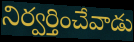
నిర్వర్తించేవాడు